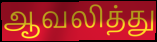
ஆவலித்து